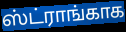
ஸ்ட்ராங்காக